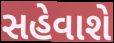
સહેવાશે